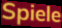
Spiele